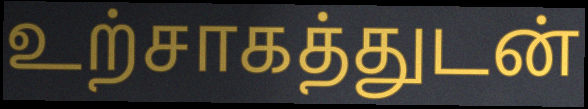
உற்சாகத்துடன்